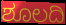
ಶೂಲದಿ